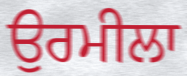
ਉਰਮੀਲਾ